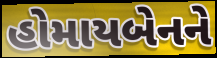
હોમાયબેનને